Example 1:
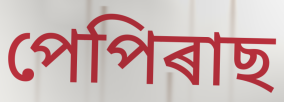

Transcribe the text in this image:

পেপিৰাছ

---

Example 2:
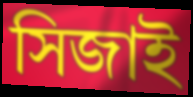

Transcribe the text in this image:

সিজাই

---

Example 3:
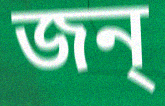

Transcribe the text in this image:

জন্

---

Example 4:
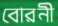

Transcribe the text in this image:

বোৱনী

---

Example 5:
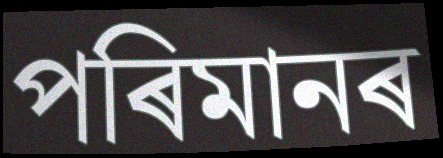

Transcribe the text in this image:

পৰিমানৰ